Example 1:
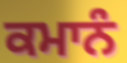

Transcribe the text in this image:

ਕਮਾਨੰ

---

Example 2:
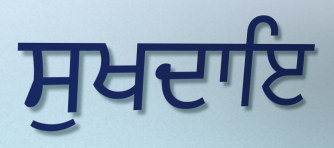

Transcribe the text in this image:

ਸੁਖਦਾਇ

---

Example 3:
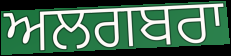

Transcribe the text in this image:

ਅਲਗਬਰਾ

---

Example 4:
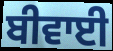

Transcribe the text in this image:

ਬੀਵਾਈ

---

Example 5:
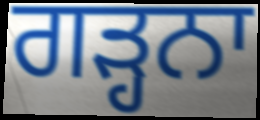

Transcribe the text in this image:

ਗੜ੍ਹਨਾ